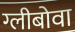
ग्लीबोवा